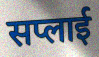
सप्‍लाई